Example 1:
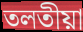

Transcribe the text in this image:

তলতীয়া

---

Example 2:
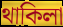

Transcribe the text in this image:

থাকিলা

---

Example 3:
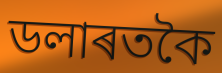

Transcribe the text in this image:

ডলাৰতকৈ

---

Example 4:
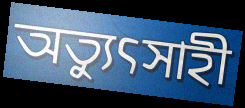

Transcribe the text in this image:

অত্যুৎসাহী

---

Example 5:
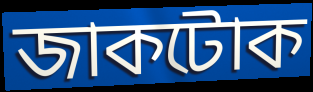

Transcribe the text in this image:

জাকটোক